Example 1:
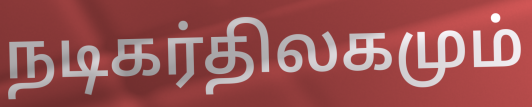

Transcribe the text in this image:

நடிகர்திலகமும்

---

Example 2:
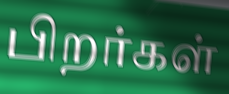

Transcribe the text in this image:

பிறர்கள்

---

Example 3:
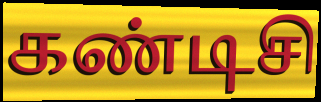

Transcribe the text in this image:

கண்டிசி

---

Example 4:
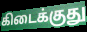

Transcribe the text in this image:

கிடைக்குது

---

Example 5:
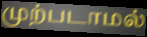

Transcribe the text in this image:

முற்படாமல்